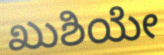
ಖುಶಿಯೇ